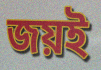
জয়ই